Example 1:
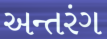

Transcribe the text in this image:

અન્તરંગ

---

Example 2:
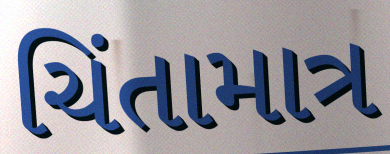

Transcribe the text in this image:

ચિંતામાત્ર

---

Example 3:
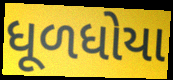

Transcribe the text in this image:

ધૂળધોયા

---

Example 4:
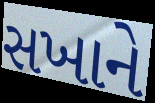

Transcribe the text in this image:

સખાને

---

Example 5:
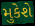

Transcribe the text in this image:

મુકેશે